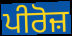
ਪੀਰੋਜ਼